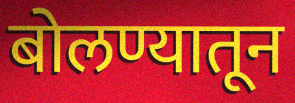
बोलण्यातून